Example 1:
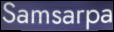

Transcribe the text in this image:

Samsarpa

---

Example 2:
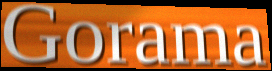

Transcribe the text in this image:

Gorama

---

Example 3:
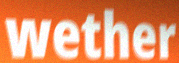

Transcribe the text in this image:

wether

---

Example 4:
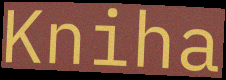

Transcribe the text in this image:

Kniha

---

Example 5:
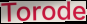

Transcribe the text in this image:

Torode